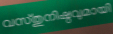
വസ്തുനിഷ്ഠവുമായി